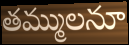
తమ్ములనూ